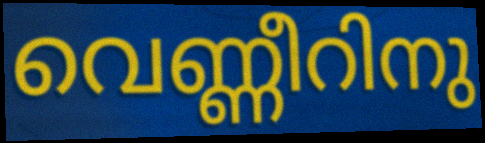
വെണ്ണീറിനു